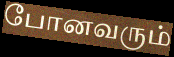
போனவரும்